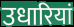
उधारियां